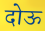
दोऊ